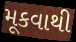
મૂકવાથી